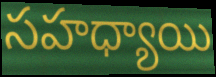
సహధ్యాయి